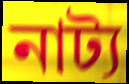
নাট্য